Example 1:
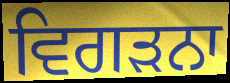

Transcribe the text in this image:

ਵਿਗੜਨਾ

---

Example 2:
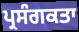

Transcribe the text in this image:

ਪ੍ਰਸੰਗਕਤਾ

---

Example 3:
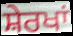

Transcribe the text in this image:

ਸ਼ੇਰਖਾਂ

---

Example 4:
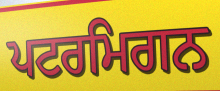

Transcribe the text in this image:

ਪਟਰਮਿਗਨ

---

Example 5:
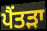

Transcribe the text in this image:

ਪੈਂਤੜਾ